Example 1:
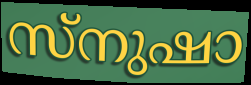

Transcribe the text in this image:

സ്നുഷാ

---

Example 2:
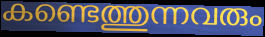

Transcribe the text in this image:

കണ്ടെത്തുന്നവരും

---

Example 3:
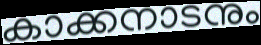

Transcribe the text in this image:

കാക്കനാടനും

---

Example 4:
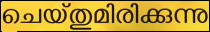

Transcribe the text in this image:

ചെയ്തുമിരിക്കുന്നു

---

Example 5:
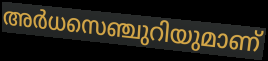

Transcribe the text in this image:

അർധസെഞ്ചുറിയുമാണ്